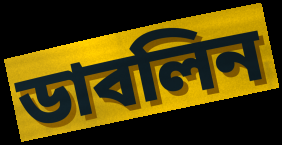
ডাবলিন